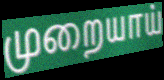
முறையாய்